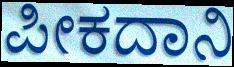
ಪೀಕದಾನಿ